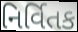
નિર્વિતક